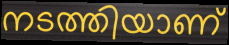
നടത്തിയാണ്